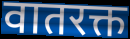
वातरक्त